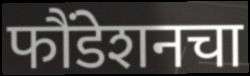
फौंडेशनचा